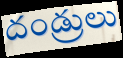
దండ్రులు